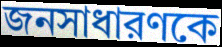
জনসাধারণকে